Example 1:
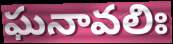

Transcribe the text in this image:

ఘనావలిః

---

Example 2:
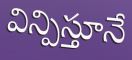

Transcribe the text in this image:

విన్పిస్తూనే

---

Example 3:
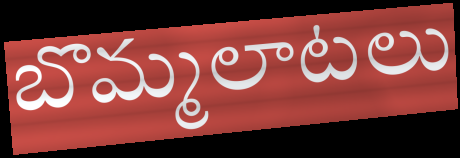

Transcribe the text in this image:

బొమ్మలాటలు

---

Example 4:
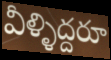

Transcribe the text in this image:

వీళ్ళిద్దరూ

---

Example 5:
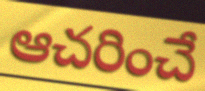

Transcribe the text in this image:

ఆచరించే